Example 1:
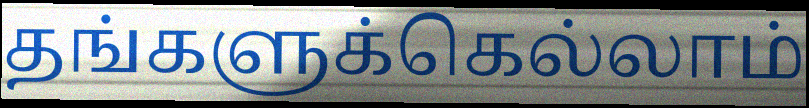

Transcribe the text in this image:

தங்களுக்கெல்லாம்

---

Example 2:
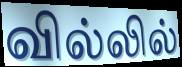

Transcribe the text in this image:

வில்லில்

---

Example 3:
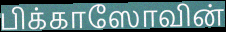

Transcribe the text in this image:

பிக்காஸோவின்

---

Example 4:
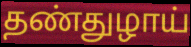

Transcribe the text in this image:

தண்துழாய்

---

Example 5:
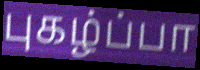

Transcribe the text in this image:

புகழ்ப்பா